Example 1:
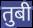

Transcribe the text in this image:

तुबी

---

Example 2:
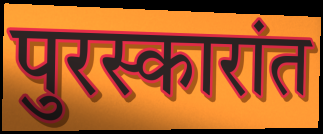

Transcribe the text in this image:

पुरस्कारांत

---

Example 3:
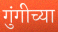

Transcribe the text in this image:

गुंगीच्या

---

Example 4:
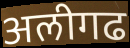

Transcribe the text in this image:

अलीगढ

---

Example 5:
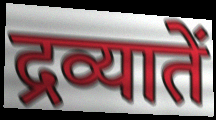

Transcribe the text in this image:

द्रव्यातें